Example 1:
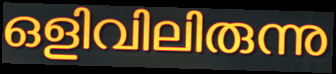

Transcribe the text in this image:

ഒളിവിലിരുന്നു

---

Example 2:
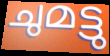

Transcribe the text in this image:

ചുമട്ടു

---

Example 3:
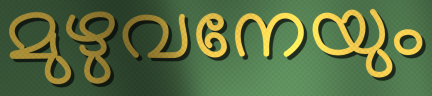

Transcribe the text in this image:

മുഴുവനേയും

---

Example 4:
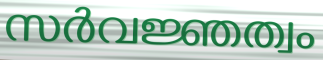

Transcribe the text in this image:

സർവജ്ഞത്വം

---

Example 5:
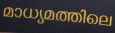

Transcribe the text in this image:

മാധ്യമത്തിലെ